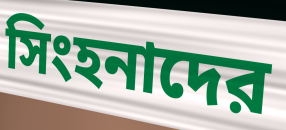
সিংহনাদের